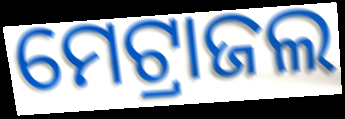
ମେଟ୍ରାଜଲ